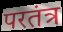
परतंत्र